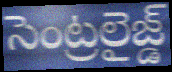
సెంట్రలైజ్డ్